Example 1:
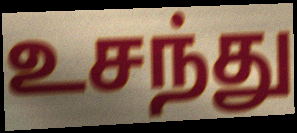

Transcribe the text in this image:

உசந்து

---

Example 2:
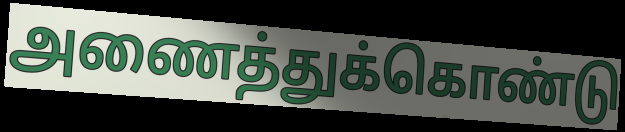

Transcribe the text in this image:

அணைத்துக்கொண்டு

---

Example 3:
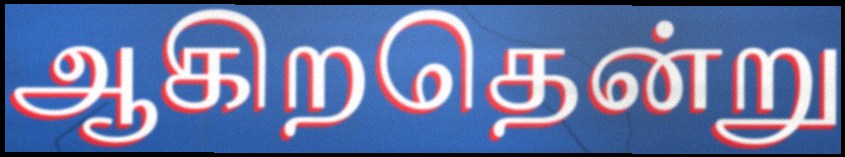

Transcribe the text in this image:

ஆகிறதென்று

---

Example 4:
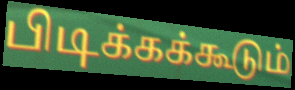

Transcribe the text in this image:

பிடிக்கக்கூடும்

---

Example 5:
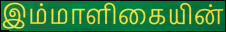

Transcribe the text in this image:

இம்மாளிகையின்